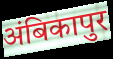
अंबिकापुर